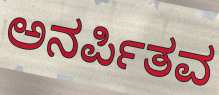
ಅನರ್ಪಿತವ